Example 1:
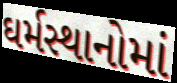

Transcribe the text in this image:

ઘર્મસ્થાનોમાં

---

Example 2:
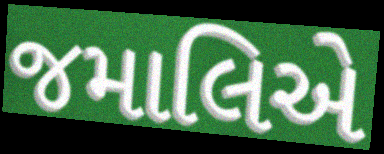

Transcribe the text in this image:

જમાલિએ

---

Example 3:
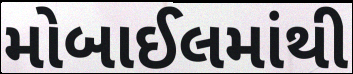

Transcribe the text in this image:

મોબાઈલમાંથી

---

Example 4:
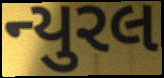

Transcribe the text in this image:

ન્યુરલ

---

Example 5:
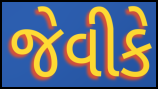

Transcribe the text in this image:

જેવીકે